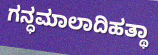
ಗನ್ಧಮಾಲಾದಿಹತ್ಥಾ